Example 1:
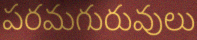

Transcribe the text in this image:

పరమగురువులు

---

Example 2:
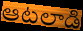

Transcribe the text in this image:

ఆటలాడి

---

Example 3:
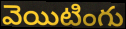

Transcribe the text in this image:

వెయిటింగు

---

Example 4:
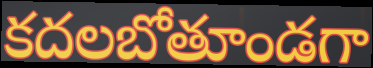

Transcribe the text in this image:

కదలబోతూండగా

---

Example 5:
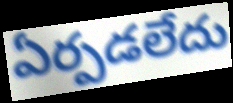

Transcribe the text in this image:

ఏర్పడలేదు